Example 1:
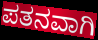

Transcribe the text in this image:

ಪತನವಾಗಿ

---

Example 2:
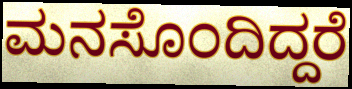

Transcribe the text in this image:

ಮನಸೊಂದಿದ್ದರೆ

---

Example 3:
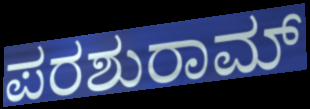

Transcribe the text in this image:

ಪರಶುರಾಮ್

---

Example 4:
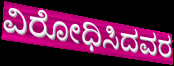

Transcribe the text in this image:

ವಿರೋಧಿಸಿದವರ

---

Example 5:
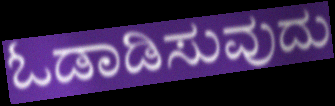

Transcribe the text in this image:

ಓಡಾಡಿಸುವುದು